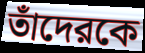
তাঁদেরকে